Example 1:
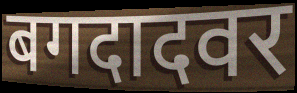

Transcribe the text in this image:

बगदादवर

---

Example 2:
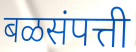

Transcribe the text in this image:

बळसंपत्ती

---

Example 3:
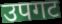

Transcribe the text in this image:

उपगट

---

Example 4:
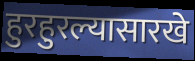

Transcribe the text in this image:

हुरहुरल्यासारखे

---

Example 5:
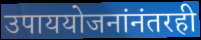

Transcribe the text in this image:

उपाययोजनांनंतरही